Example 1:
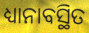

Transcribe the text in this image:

ଧ୍ୟାନାବସ୍ଥିତ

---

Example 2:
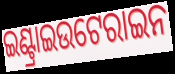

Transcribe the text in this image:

ଇଣ୍ଟ୍ରାଇଉଟେରାଇନ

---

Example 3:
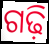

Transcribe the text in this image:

ଗଢ଼ି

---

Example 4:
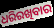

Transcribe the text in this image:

ଧରିରଖିବାର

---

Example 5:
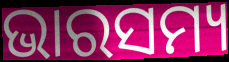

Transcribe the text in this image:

ଭାରସମ୍ୟ